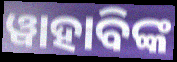
ୱାହାବିଙ୍କ